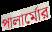
পালার্মোর